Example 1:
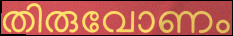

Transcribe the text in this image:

തിരുവോണം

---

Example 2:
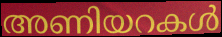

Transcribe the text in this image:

അണിയറകൾ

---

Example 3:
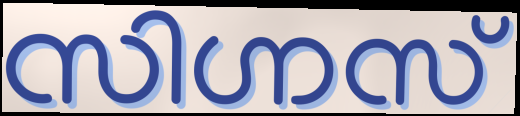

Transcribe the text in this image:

സിഗ്നസ്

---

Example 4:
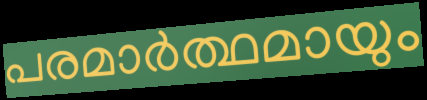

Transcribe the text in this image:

പരമാർത്ഥമായും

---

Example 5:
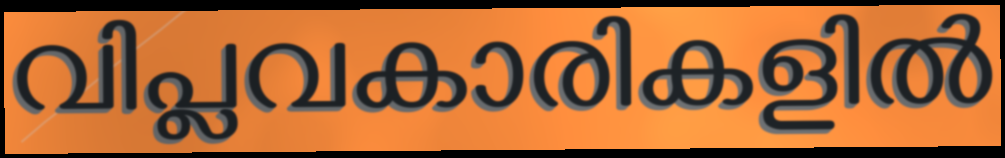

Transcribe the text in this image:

വിപ്ലവകാരികളിൽ